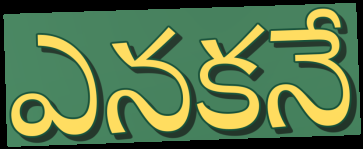
ఎనకనే